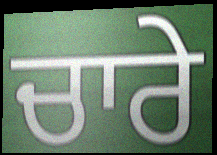
ਚਾਰੇ